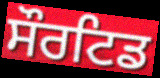
ਸੌਰਟਿਡ